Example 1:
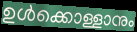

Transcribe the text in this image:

ഉൾക്കൊള്ളാനും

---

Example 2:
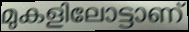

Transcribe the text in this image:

മുകളിലോട്ടാണ്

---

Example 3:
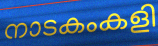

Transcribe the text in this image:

നാടകംകളി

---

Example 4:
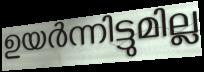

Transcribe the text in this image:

ഉയർന്നിട്ടുമില്ല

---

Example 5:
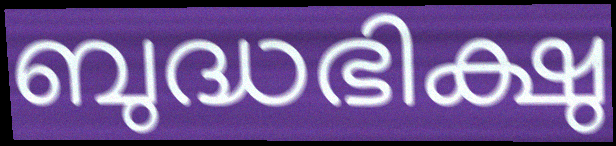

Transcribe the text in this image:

ബുദ്ധഭിക്ഷു